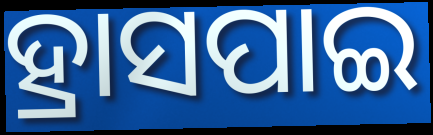
ହ୍ରାସପାଇ